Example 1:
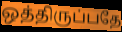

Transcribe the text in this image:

ஒத்திருப்பதே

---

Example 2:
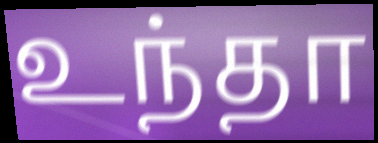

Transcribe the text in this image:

உந்தா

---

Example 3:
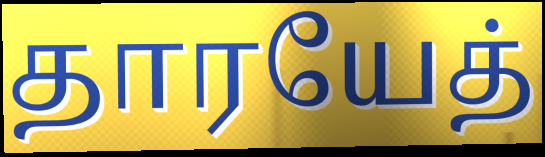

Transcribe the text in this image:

தாரயேத்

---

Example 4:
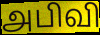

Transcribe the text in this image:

அபிவி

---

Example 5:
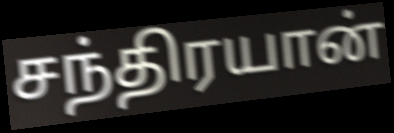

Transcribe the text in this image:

சந்திரயான்